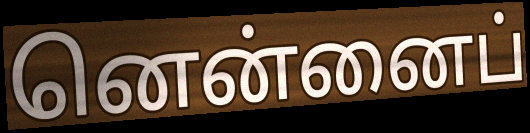
னென்னைப்